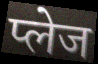
प्‍लेज